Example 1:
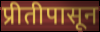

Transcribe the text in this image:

प्रीतीपासून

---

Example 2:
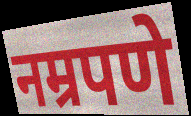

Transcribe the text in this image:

नम्रपणे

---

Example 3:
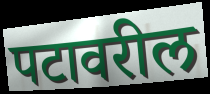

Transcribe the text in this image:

पटावरील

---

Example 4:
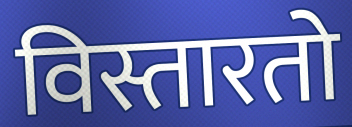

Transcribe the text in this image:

विस्तारतो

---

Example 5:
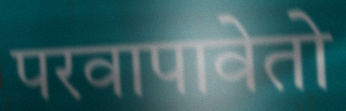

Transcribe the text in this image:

परवापावेतो